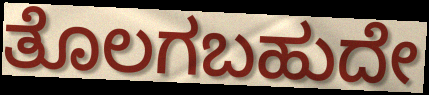
ತೊಲಗಬಹುದೇ